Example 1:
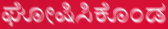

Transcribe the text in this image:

ಘೋಷಿಸಿಕೊಂಡ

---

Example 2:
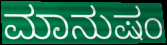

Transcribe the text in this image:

ಮಾನುಷಂ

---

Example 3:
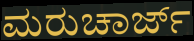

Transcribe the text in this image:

ಮರುಚಾರ್ಜ್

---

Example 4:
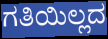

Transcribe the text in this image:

ಗತಿಯಿಲ್ಲದ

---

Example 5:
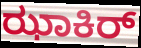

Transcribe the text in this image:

ಝಾಕಿರ್